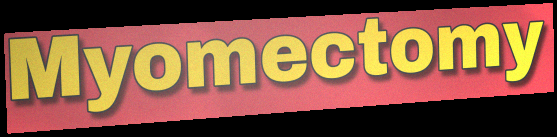
Myomectomy